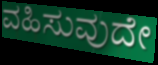
ವಹಿಸುವುದೇ